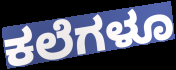
ಕಲೆಗಳೂ